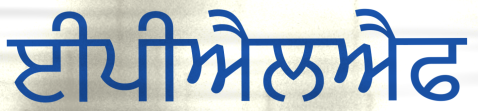
ਈਪੀਐਲਐਫ